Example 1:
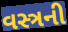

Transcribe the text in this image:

વસ્ત્રની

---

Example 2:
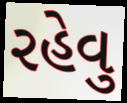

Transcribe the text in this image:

રહેવુ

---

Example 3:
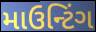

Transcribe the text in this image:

માઉન્ટિંગ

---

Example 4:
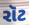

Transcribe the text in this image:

રૉટ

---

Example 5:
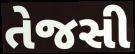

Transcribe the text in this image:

તેજસી